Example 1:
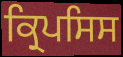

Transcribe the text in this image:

ਕ੍ਰਿਪਸਿਸ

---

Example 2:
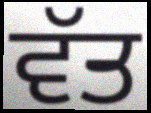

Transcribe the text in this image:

ਵੱਤ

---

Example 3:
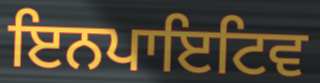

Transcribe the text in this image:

ਇਨਪਾਇਟਿਵ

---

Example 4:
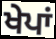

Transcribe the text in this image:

ਖੇਪਾਂ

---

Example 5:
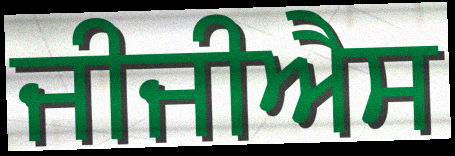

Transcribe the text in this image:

ਜੀਜੀਐਸ